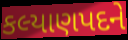
કલ્યાણપદને